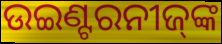
ଉଇଣ୍ଟରନୀଜ୍‌ଙ୍କ